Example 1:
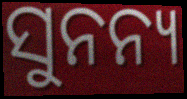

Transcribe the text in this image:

ସୁନନ୍ୟ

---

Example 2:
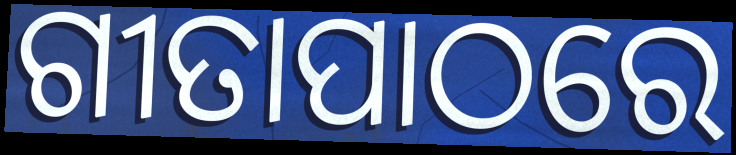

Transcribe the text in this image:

ଗୀତାପାଠରେ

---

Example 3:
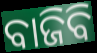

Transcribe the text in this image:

ବାଜିବି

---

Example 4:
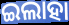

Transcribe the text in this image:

ଇଲାହା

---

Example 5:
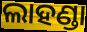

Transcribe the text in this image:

ଲାହଣ୍ଡା